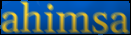
ahimsa